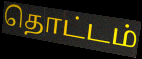
தொட்டம்